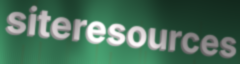
siteresources